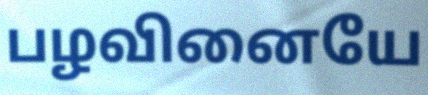
பழவினையே